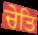
ਚੇਤਿ